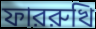
ফাররুখি